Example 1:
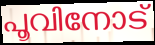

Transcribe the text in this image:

പൂവിനോട്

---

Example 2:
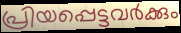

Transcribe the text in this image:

പ്രിയപ്പെട്ടവർക്കും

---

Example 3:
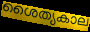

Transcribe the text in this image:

ശൈത്യകാല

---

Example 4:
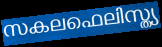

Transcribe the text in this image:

സകലഫെലിസ്ത്യ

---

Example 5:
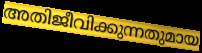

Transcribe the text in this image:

അതിജീവിക്കുന്നതുമായ